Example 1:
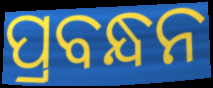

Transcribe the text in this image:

ପ୍ରବନ୍ଧନ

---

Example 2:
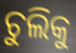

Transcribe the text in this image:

ଚୁଲିକୁ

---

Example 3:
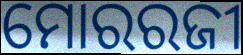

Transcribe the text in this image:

ମୋରରଜୀ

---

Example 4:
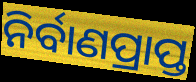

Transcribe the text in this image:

ନିର୍ବାଣପ୍ରାପ୍ତ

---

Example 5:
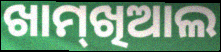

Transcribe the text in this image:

ଖାମ୍‌ଖିଆଲ